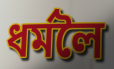
ধৰ্মলৈ